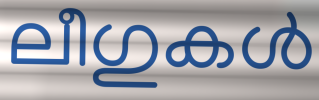
ലീഗുകൾ